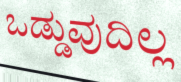
ಒಡ್ಡುವುದಿಲ್ಲ